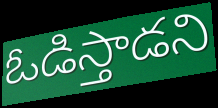
ఓడిస్తాడని